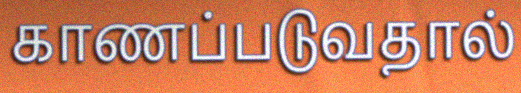
காணப்படுவதால்